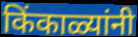
किंकाळ्यांनी